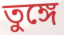
তুঙ্গে